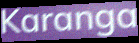
Karanga